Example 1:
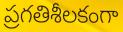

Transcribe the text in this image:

ప్రగతిశీలకంగా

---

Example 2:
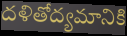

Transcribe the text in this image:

దళితోద్యమానికి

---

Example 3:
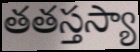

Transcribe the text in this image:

తతస్తస్యా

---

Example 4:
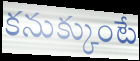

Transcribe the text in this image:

కనుక్కుంటే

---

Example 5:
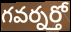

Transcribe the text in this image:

గవర్నర్తో